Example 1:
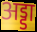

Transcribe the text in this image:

अड्डा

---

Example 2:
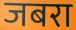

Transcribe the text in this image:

जबरा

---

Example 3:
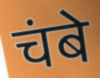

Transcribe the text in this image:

चंबे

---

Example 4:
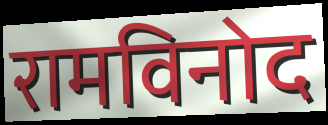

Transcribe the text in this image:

रामविनोद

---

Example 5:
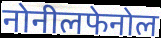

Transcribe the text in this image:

नोनीलफेनोल